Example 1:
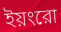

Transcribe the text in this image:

ইয়ংরো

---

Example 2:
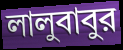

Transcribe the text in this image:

লালুবাবুর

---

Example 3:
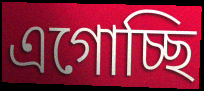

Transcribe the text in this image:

এগোচ্ছি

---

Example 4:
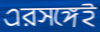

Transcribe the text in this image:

এরসঙ্গেই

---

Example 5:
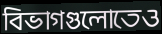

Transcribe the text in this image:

বিভাগগুলোতেও